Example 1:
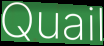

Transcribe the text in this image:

Quail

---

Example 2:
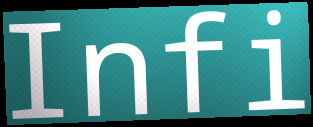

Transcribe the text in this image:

Infi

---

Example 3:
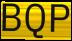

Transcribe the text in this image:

BQP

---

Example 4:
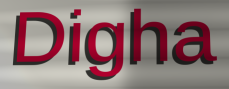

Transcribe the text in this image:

Digha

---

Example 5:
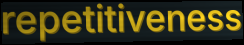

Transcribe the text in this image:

repetitiveness